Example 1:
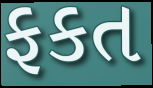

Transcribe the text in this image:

ફકત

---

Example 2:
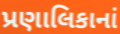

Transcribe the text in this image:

પ્રણાલિકાનાં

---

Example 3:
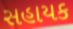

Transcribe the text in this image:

સહાયક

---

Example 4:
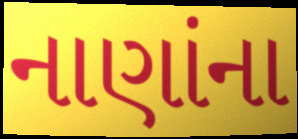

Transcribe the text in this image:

નાણાંના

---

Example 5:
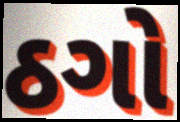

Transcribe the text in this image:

ઠગો